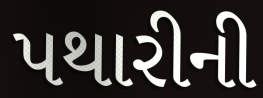
પથારીની